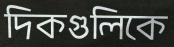
দিকগুলিকে